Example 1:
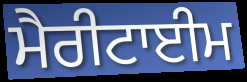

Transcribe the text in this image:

ਮੈਰੀਟਾਈਮ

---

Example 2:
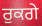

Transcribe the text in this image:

ਰੁਕਗੇ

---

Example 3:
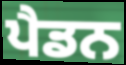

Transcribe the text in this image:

ਪੈਡਨ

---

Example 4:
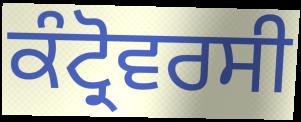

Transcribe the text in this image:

ਕੰਟ੍ਰੋਵਰਸੀ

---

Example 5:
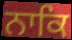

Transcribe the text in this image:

ਨਾਕਿ